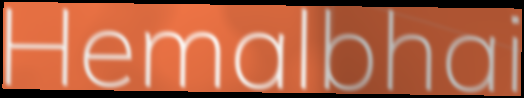
Hemalbhai